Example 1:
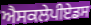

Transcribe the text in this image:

ਐਸਕਲੇਪੀਏਡਸ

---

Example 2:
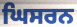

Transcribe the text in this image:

ਘਿਸਰਨ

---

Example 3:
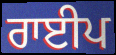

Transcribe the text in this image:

ਰਾਈਪ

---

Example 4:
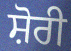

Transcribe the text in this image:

ਸ਼ੋਰੀ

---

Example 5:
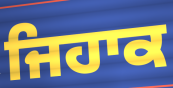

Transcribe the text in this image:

ਜਿਹਾਕ